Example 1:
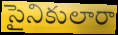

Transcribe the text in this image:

సైనికులారా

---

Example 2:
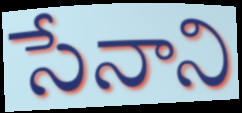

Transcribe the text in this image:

సేనాని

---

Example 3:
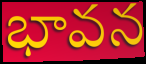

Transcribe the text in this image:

భావన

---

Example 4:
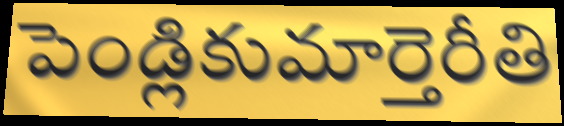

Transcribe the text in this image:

పెండ్లికుమార్తెరీతి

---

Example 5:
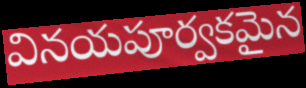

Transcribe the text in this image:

వినయపూర్వకమైన